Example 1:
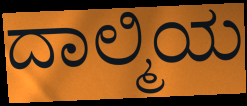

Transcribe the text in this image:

ದಾಲ್ಮಿಯ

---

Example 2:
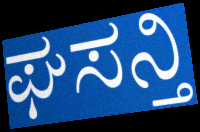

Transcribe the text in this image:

ಘಸನ್ತಿ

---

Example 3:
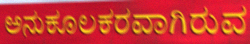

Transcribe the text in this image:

ಅನುಕೂಲಕರವಾಗಿರುವ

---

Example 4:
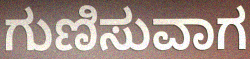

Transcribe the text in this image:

ಗುಣಿಸುವಾಗ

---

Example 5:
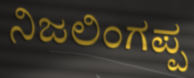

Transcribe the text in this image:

ನಿಜಲಿಂಗಪ್ಪ